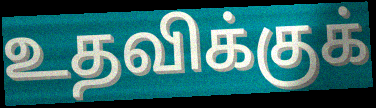
உதவிக்குக்